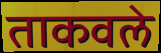
ताकवले